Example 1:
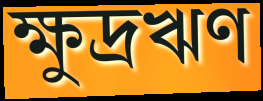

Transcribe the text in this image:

ক্ষুদ্রঋণ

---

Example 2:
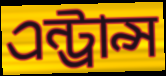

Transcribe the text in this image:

এন্ট্রান্স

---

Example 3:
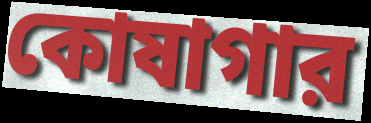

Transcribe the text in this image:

কোষাগার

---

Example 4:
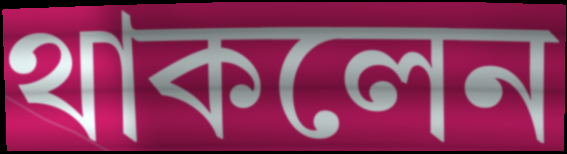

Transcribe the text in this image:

থাকলেন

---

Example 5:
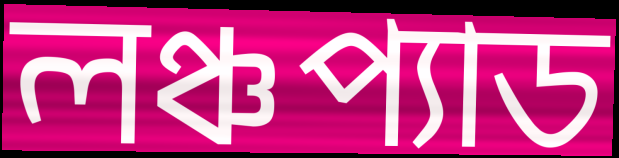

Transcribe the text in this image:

লঞ্চপ্যাড